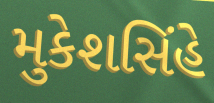
મુકેશસિંહે